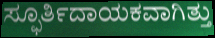
ಸ್ಫೂರ್ತಿದಾಯಕವಾಗಿತ್ತು